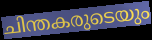
ചിന്തകരുടെയും